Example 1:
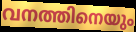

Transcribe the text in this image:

വനത്തിനെയും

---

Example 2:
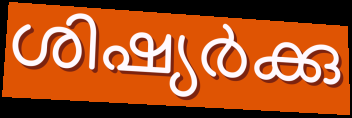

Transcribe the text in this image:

ശിഷ്യർക്കു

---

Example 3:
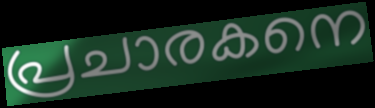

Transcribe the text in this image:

പ്രചാരകനെ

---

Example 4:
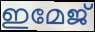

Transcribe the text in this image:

ഇമേജ്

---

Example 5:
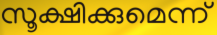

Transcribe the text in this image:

സൂക്ഷിക്കുമെന്ന്